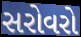
સરોવરો